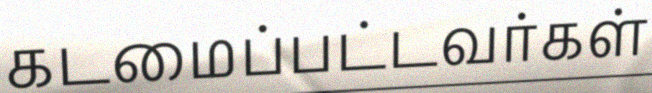
கடமைப்பட்டவர்கள்